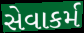
સેવાકર્મ